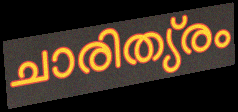
ചാരിത്യ്രം